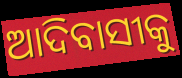
ଆଦିବାସୀକୁ